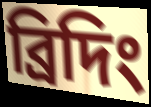
ব্রিদিং